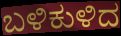
ಬಳಿಕುಳಿದ